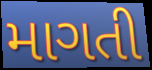
માગતી